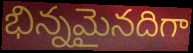
భిన్నమైనదిగా